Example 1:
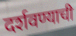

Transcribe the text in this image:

दर्शवण्याची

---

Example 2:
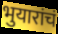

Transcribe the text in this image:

भुयारांचं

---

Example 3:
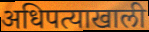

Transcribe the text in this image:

अधिपत्याखाली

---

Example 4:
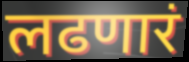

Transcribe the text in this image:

लढणारं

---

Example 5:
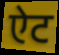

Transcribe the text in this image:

ऐट